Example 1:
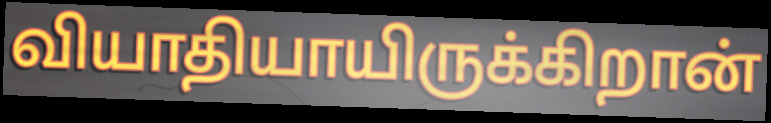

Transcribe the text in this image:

வியாதியாயிருக்கிறான்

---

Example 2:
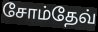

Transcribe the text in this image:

சோம்தேவ்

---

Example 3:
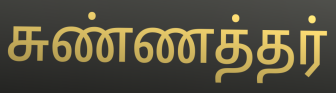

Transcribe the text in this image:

சுண்ணத்தர்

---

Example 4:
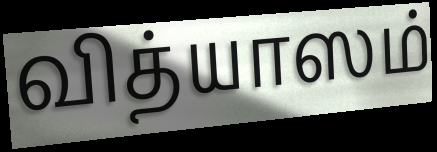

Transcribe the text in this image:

வித்யாஸம்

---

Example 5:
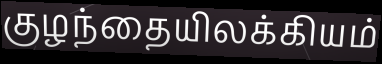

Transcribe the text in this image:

குழந்தையிலக்கியம்